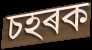
চহৰক